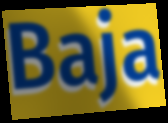
Baja